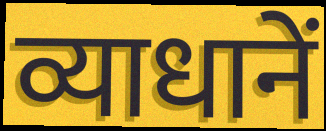
व्याधानें